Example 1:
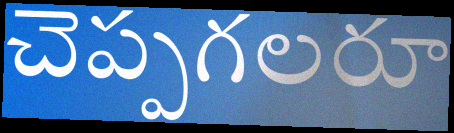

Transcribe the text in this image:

చెప్పగలరూ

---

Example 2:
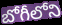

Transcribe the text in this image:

బోగీలోని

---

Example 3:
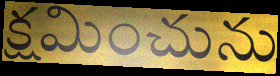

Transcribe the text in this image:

క్షమించును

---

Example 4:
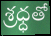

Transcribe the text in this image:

శ్రధ్ధతో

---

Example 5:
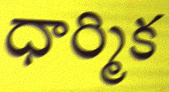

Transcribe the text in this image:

ధార్మిక